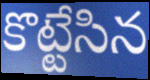
కొట్టేసిన